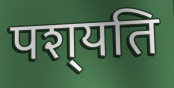
पश्यति